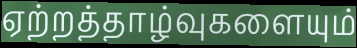
ஏற்றத்தாழ்வுகளையும்